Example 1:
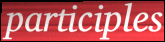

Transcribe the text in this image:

participles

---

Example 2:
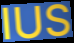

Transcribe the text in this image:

IUS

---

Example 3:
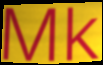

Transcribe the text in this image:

Mk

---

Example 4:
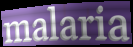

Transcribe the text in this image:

malaria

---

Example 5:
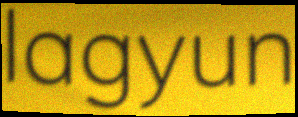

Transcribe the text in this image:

lagyun